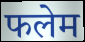
फलेम